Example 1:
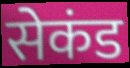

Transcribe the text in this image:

सेकंड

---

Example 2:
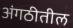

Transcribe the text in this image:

अंगठीतील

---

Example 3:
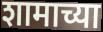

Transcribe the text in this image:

शामाच्या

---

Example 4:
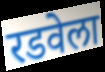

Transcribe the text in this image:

रडवेला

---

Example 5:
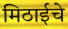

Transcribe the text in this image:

मिठाईचे